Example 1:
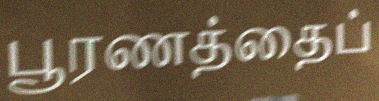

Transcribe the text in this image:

பூரணத்தைப்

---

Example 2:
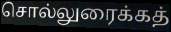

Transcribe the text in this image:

சொல்லுரைக்கத்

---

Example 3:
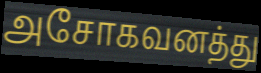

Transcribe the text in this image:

அசோகவனத்து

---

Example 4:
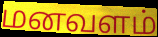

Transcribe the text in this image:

மனவளம்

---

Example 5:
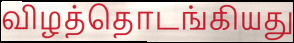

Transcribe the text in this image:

விழத்தொடங்கியது